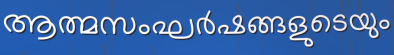
ആത്മസംഘർഷങ്ങളുടെയും